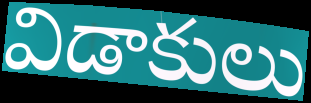
విడాకులు